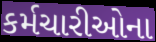
કર્મચારીઓના